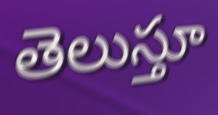
తెలుస్తూ